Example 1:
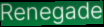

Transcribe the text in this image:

Renegade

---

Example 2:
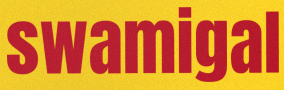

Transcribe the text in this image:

swamigal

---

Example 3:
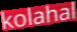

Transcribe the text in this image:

kolahal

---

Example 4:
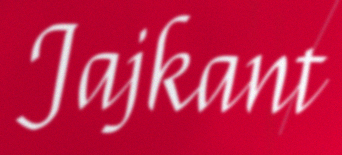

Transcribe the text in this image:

Jajkant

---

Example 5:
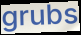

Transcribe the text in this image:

grubs